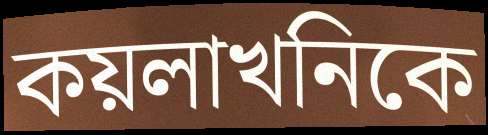
কয়লাখনিকে